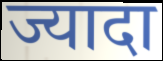
ज्‍यादा